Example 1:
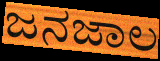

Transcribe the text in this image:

ಜನಜಾಲ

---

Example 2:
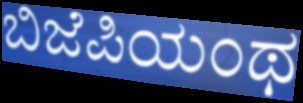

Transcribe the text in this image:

ಬಿಜೆಪಿಯಂಥ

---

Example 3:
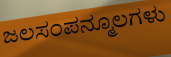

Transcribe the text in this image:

ಜಲಸಂಪನ್ಮೂಲಗಳು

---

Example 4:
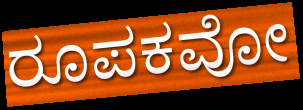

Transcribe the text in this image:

ರೂಪಕವೋ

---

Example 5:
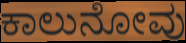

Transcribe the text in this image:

ಕಾಲುನೋವು